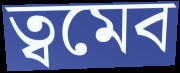
ত্বমেব